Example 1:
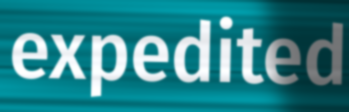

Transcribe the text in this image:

expedited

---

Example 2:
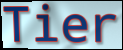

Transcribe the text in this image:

Tier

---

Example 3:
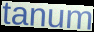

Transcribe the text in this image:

tanum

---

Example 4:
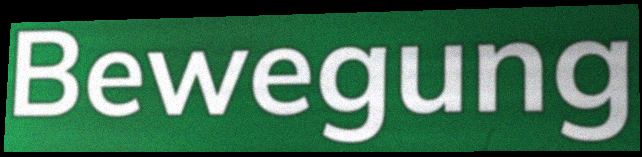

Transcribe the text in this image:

Bewegung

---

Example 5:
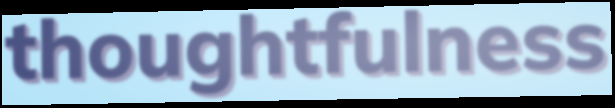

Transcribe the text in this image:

thoughtfulness